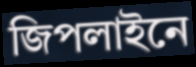
জিপলাইনে